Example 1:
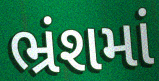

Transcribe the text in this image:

ભ્રંશમાં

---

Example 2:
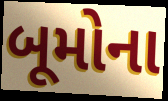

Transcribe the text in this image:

બૂમોના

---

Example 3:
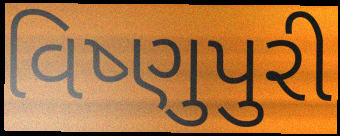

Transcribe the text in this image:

વિષ્ણુપુરી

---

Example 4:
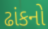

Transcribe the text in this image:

ઢાંકનો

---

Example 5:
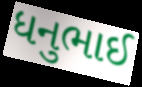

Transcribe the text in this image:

ધનુભાઈ